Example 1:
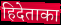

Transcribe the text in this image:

हिदेताका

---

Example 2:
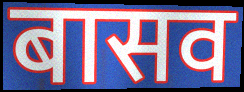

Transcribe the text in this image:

बासव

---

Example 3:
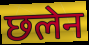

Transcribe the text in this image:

छलेन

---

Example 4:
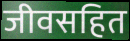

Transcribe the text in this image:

जीवसहित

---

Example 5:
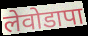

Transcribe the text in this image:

लेवोडापा